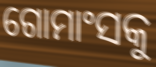
ଗୋମାଂସକୁ